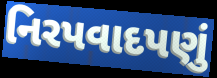
નિરપવાદપણું